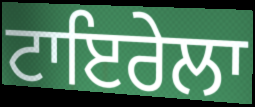
ਟਾਇਰੇਲਾ